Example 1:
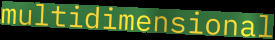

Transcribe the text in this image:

multidimensional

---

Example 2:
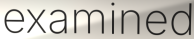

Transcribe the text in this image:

examined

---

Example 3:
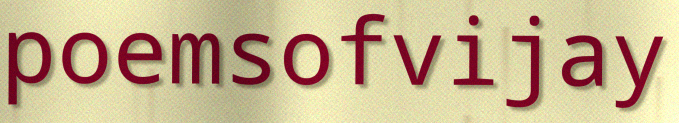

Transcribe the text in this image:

poemsofvijay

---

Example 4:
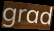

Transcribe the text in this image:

grad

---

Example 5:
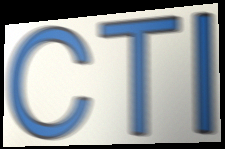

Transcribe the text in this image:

CTI